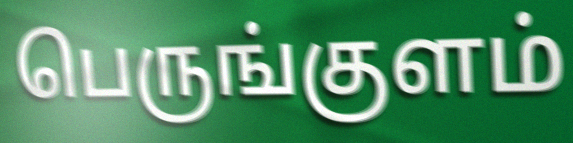
பெருங்குளம்